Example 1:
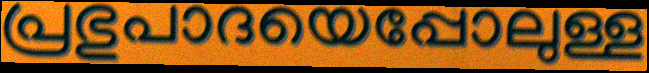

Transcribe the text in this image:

പ്രഭുപാദയെപ്പോലുള്ള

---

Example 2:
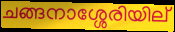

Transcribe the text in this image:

ചങ്ങനാശ്ശേരിയില്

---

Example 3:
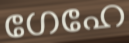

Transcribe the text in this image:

ഗേഹേ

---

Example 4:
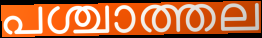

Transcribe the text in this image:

പശ്ചാത്തല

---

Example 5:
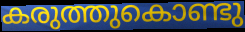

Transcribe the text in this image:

കരുത്തുകൊണ്ടു